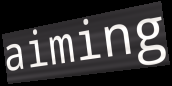
aiming